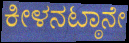
ಕೀಳನಟ್ಠಾನೇ